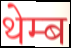
थेम्ब